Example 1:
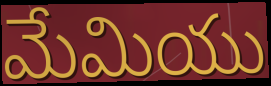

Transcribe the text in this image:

మేమియు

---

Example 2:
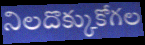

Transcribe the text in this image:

నిలదొక్కుకోగల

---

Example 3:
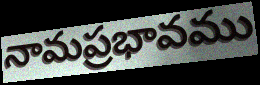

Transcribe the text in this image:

నామప్రభావము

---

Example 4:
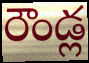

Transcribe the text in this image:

రౌండ్ల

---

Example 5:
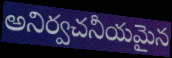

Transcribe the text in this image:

అనిర్వచనీయమైన